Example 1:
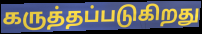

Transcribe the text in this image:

கருத்தப்படுகிறது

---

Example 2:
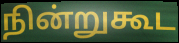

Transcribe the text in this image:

நின்றுகூட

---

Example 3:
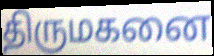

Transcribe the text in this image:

திருமகனை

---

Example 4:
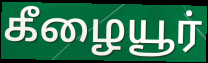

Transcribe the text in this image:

கீழையூர்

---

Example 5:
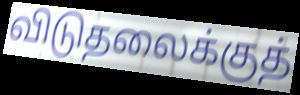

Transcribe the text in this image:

விடுதலைக்குத்